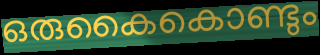
ഒരുകൈകൊണ്ടും